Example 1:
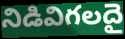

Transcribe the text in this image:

నిడివిగలదై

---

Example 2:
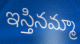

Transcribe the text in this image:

ఇస్తినమ్మా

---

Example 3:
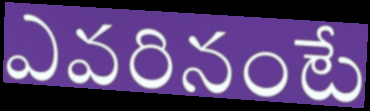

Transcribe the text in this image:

ఎవరినంటే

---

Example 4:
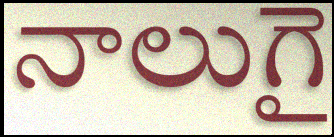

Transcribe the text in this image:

నాలుగై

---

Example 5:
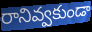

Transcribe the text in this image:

రానివ్వకుండా